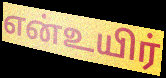
என்உயிர்